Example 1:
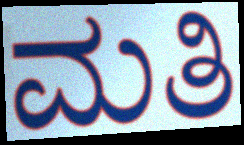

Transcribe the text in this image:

ಮತಿ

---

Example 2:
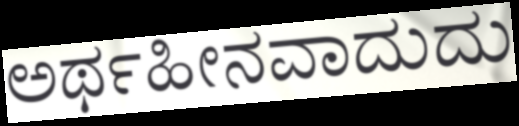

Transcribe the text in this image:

ಅರ್ಥಹೀನವಾದುದು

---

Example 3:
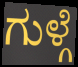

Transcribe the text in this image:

ಗುಳ್ಗೆ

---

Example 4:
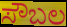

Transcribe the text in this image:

ಸೌಬಲ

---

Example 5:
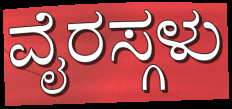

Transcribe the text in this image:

ವೈರಸ್ಗಳು